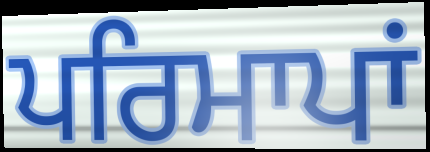
ਪਰਿਮਾਪਾਂ